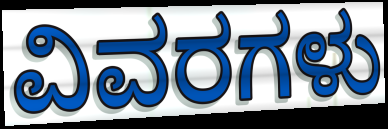
ವಿವರಗಳು